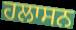
ਹਲਾਸਨ